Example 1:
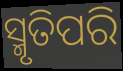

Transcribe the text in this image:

ସ୍ମୃତିପରି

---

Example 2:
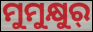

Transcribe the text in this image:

ମୁମୁକ୍ଷୁର୍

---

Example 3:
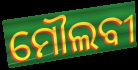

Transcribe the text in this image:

ମୌଲବୀ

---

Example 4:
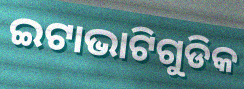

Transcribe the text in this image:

ଇଟାଭାଟିଗୁଡିକ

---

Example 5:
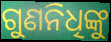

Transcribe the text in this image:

ଗୁଣନିଧିଙ୍କୁ